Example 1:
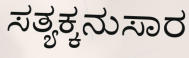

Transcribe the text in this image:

ಸತ್ಯಕ್ಕನುಸಾರ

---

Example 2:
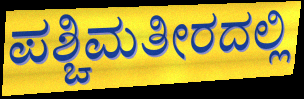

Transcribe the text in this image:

ಪಶ್ಚಿಮತೀರದಲ್ಲಿ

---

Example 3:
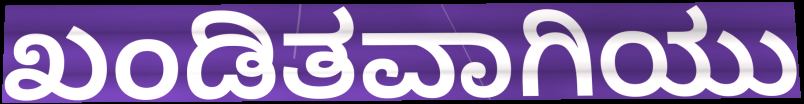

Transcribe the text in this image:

ಖಂಡಿತವಾಗಿಯು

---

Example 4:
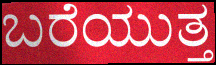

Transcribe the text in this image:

ಬರೆಯುತ್ತ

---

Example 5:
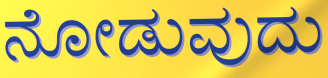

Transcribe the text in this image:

ನೋಡುವುದು